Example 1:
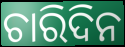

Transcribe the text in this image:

ଚାରିଦିନ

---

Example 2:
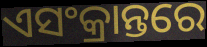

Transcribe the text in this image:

ଏସଂକ୍ରାନ୍ତରେ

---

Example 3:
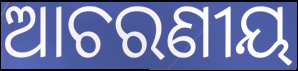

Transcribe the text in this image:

ଆଚରଣୀୟ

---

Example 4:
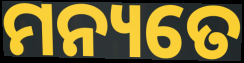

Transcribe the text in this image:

ମନ୍ୟତେ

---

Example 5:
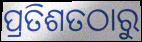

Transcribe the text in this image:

ପ୍ରତିଶତଠାରୁ